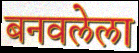
बनवलेला